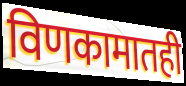
विणकामातही